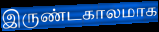
இருண்டகாலமாக